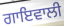
ਗਾਇਵਾਲੀ